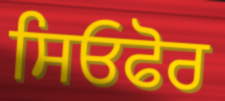
ਸਿਓਫੋਰ